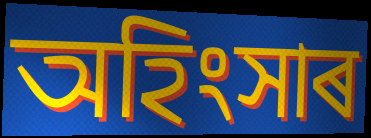
অহিংসাৰ